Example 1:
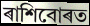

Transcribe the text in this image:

ৰাশিবোৰত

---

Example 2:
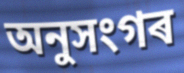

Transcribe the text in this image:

অনুসংগৰ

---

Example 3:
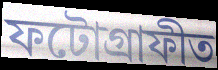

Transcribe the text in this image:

ফটোগ্ৰাফীত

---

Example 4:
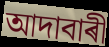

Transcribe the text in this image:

আদাবাৰী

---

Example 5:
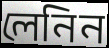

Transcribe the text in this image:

লেনিন